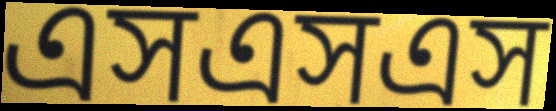
এসএসএস